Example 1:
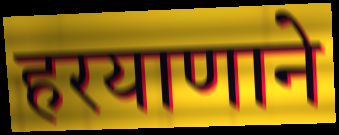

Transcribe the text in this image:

हरयाणाने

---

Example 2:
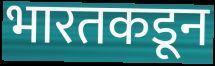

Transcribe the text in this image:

भारतकडून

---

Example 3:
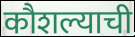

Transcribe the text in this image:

कौशल्याची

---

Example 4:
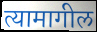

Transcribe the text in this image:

त्यामागील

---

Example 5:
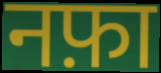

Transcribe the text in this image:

नफ़ा